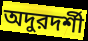
অদুরদর্শী